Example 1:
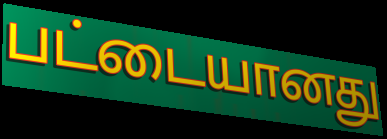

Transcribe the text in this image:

பட்டையானது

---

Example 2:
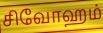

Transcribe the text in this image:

சிவோஹம்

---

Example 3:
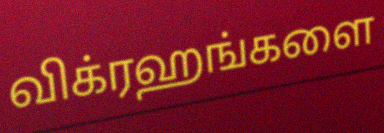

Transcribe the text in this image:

விக்ரஹங்களை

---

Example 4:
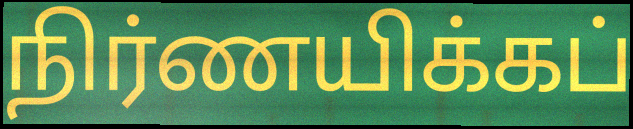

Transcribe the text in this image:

நிர்ணயிக்கப்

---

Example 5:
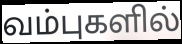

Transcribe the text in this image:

வம்புகளில்